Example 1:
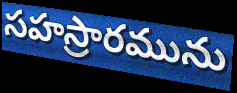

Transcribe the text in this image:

సహస్రారమును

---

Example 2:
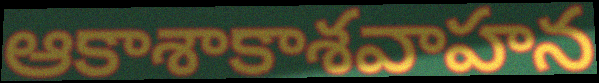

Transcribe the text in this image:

ఆకాశాకాశవాహన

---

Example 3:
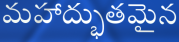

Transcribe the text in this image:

మహాద్భుతమైన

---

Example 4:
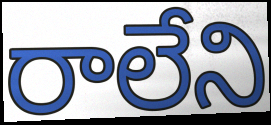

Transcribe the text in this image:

రాలేని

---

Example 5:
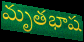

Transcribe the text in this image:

మృతభాష